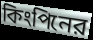
কিংপিনের